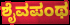
ಶೈವಪಂಥ